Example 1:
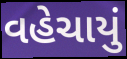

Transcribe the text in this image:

વહેચાયું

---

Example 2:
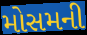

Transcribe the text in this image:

મોસમની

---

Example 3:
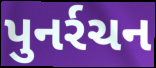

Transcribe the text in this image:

પુનર્રચન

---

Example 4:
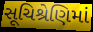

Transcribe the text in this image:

સૂચિશ્રેણિમાં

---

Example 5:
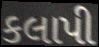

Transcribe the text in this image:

કલાપી